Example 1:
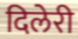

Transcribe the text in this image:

दिलेरी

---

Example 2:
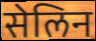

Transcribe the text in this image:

सेलिन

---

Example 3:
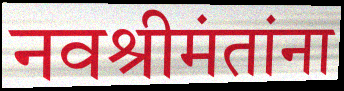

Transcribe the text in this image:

नवश्रीमंतांना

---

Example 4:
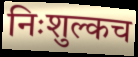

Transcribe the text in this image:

निःशुल्कच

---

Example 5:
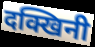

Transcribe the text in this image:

दक्खिनी